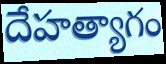
దేహత్యాగం